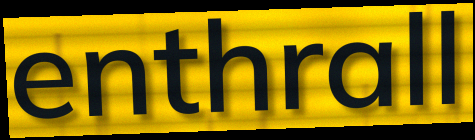
enthrall